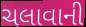
ચલાવાની